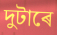
দুটাৰে